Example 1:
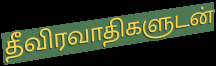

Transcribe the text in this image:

தீவிரவாதிகளுடன்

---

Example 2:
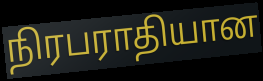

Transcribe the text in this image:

நிரபராதியான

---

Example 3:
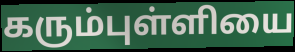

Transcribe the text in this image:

கரும்புள்ளியை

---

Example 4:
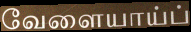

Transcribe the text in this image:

வேளையாய்ப்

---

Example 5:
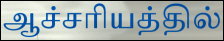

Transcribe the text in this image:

ஆச்சரியத்தில்